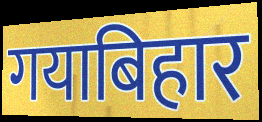
गयाबिहार